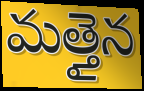
మత్తైన